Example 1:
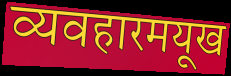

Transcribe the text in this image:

व्यवहारमयूख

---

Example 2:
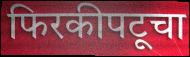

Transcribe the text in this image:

फिरकीपटूचा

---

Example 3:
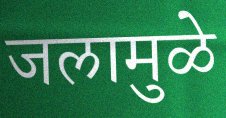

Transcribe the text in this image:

जलामुळे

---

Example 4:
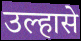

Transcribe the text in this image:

उल्हासे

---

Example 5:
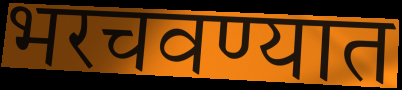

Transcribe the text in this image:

भरचवण्यात